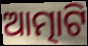
ଆତ୍ମାଟି